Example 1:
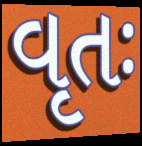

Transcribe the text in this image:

વૃતઃ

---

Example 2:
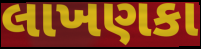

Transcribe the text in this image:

લાખણકા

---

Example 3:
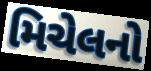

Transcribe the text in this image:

મિચેલનો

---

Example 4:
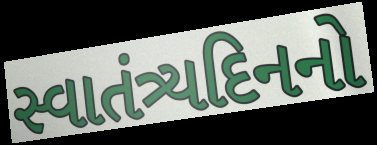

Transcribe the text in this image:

સ્વાતંત્ર્યદિનનો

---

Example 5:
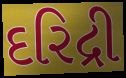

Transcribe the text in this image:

દરિદ્રી